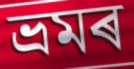
ভ্ৰমৰ